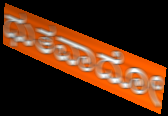
ಧುತವಾದೋ